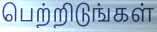
பெற்றிடுங்கள்